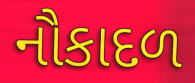
નૌકાદળ